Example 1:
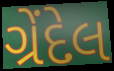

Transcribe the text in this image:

ગ્રેંદેલ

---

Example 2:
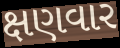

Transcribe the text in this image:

ક્ષણવાર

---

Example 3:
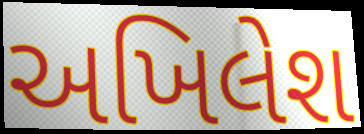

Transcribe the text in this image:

અખિલેશ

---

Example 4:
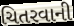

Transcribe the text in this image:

ચિતરવાની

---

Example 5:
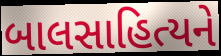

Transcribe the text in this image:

બાલસાહિત્યને